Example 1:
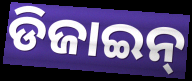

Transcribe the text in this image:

ଡିଜାଇନ୍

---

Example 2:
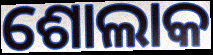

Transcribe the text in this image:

ଶୋଲାକ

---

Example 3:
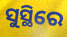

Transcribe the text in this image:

ସୁସ୍ଥିରେ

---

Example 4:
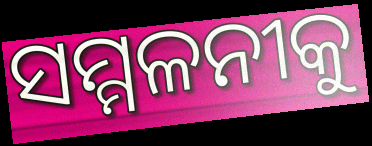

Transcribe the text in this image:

ସମ୍ମଳନୀକୁ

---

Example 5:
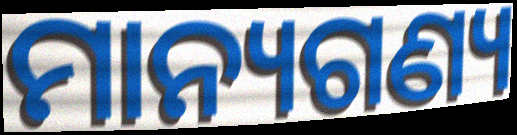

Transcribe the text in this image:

ମାନ୍ୟଗଣ୍ୟ